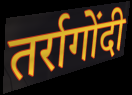
तर्रागोंदी